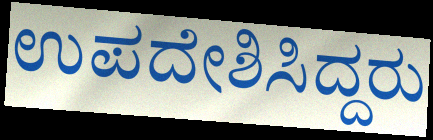
ಉಪದೇಶಿಸಿದ್ದರು